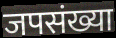
जपसंख्या